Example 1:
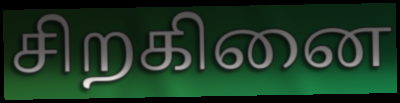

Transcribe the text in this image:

சிறகினை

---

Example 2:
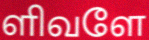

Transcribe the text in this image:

ளிவளே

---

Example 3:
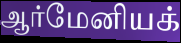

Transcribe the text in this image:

ஆர்மேனியக்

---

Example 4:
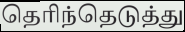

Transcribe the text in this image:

தெரிந்தெடுத்து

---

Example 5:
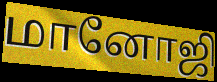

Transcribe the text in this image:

மானோஜி